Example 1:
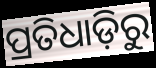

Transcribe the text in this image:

ପ୍ରତିଧାଡ଼ିରୁ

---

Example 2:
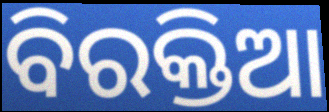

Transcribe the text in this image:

ବିରକ୍ତିଆ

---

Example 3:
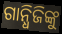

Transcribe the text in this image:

ଗାନ୍ଧିଜିଙ୍କୁ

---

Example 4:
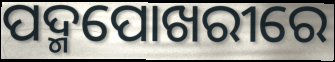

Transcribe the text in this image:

ପଦ୍ମପୋଖରୀରେ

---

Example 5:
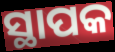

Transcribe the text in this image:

ସ୍ଥାପକ